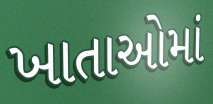
ખાતાઓમાં